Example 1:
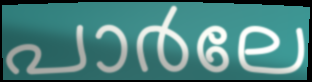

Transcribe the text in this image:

പാർലേ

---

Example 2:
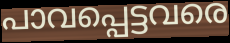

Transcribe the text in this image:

പാവപ്പെട്ടവരെ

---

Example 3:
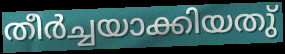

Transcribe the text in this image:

തീർച്ചയാക്കിയതു്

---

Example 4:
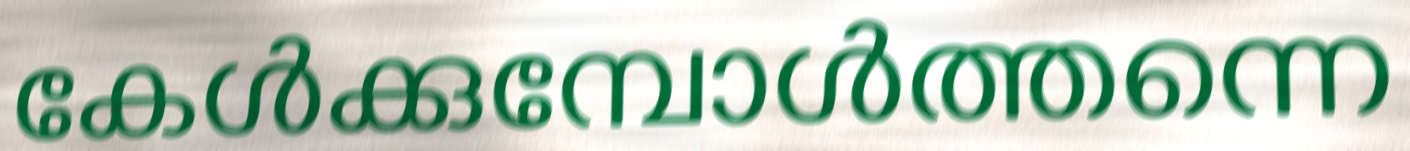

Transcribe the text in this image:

കേൾക്കുമ്പോൾത്തന്നെ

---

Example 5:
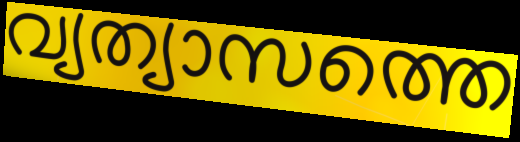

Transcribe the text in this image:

വ്യത്യാസത്തെ